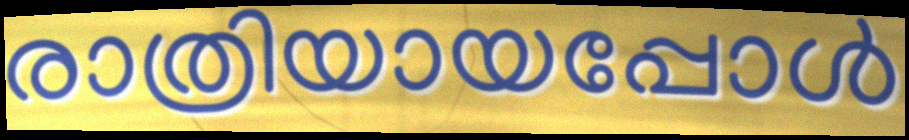
രാത്രിയായപ്പോൾ